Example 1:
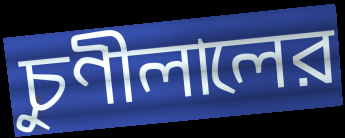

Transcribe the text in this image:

চুণীলালের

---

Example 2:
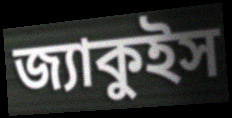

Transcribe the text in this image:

জ্যাকুইস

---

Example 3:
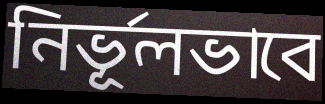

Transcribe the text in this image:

নির্ভূলভাবে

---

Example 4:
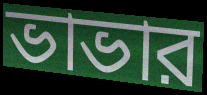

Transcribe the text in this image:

ভাভার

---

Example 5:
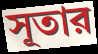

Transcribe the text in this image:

সূতার